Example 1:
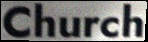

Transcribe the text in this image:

Church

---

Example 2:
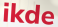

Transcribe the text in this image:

ikde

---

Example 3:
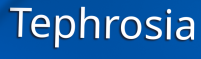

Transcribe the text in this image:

Tephrosia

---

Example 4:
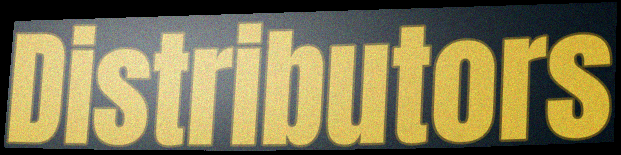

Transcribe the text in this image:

Distributors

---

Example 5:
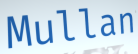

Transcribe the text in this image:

Mullan